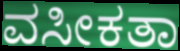
ವಸೀಕತಾ